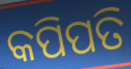
କପିପତି